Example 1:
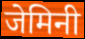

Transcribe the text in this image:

जेमिनी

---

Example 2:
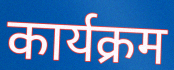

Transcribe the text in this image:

कार्यक्रम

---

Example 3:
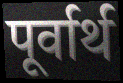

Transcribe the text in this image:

पूर्वार्थ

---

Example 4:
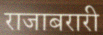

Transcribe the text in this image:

राजाबरारी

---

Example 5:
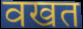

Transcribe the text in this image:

वखत